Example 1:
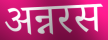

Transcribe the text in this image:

अन्नरस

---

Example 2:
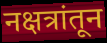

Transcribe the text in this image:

नक्षत्रांतून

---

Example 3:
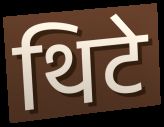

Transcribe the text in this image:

थिटे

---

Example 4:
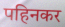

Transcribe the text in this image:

पहिनकर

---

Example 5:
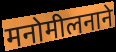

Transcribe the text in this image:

मनोमीलनाने